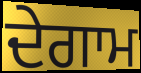
ਦੇਗਾਮ